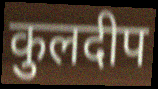
कुलदीप